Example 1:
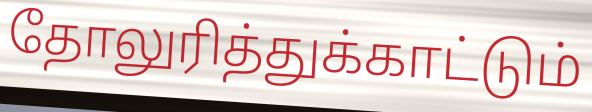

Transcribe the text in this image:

தோலுரித்துக்காட்டும்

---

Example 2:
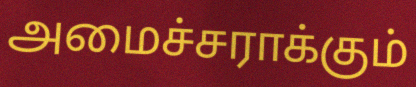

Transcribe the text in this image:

அமைச்சராக்கும்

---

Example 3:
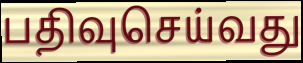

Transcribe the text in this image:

பதிவுசெய்வது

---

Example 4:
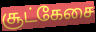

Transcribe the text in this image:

சூட்கேசை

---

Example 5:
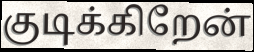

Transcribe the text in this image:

குடிக்கிறேன்